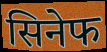
सिनेफ